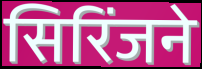
सिरिंजने